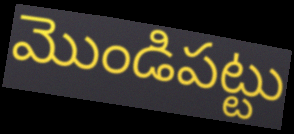
మొండిపట్టు